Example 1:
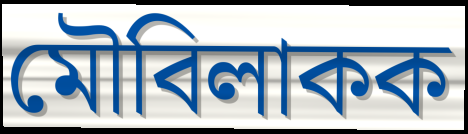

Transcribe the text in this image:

মৌবিলাকক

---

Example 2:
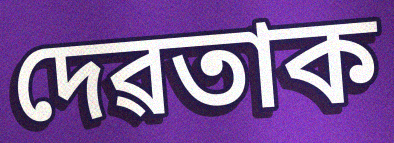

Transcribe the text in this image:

দেৱতাক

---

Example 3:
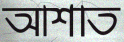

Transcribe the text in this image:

আশাত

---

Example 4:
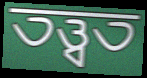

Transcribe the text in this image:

তত্ত্বত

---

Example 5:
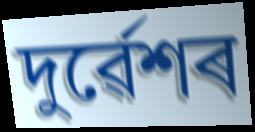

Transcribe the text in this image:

দুৰ্ৱেশৰ